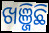
ଖଞ୍ଜିଛି